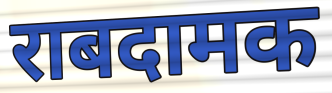
राबदामक